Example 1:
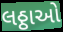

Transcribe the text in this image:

લઠ્ઠાઓ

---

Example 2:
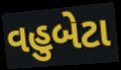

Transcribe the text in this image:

વહુબેટા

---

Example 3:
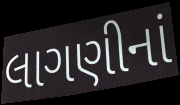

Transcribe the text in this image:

લાગણીનાં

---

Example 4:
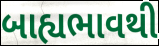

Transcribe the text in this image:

બાહ્યભાવથી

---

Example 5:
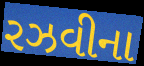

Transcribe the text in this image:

રઝવીના